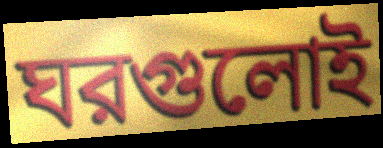
ঘরগুলোই